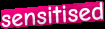
sensitised